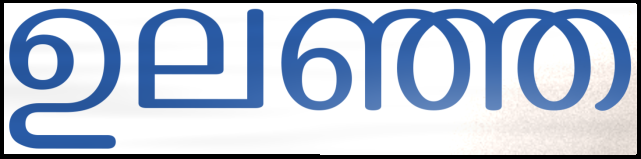
ഉലഞ്ഞ